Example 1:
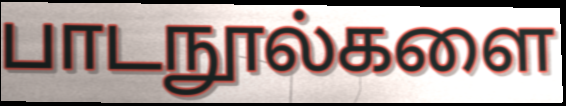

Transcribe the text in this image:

பாடநூல்களை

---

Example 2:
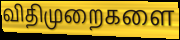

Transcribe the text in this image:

விதிமுறைகளை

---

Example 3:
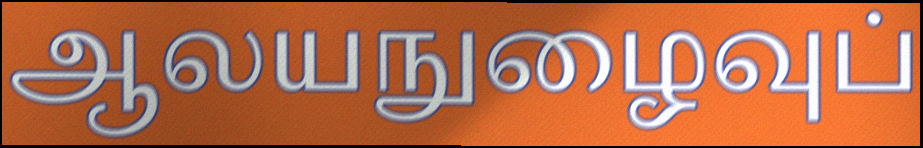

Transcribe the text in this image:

ஆலயநுழைவுப்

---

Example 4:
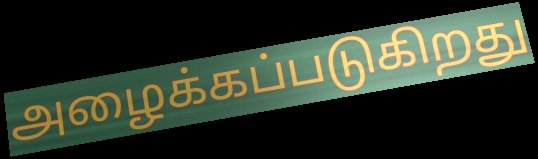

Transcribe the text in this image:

அழைக்கப்படுகிறது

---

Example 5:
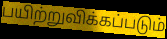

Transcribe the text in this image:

பயிற்றுவிக்கப்படும்